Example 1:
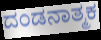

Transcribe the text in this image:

ದಂಡನಾತ್ಮಕ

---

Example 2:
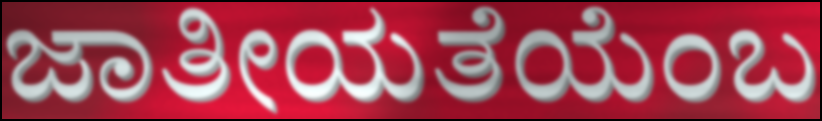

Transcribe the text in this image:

ಜಾತೀಯತೆಯೆಂಬ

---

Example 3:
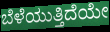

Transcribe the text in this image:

ಬೆಳೆಯುತ್ತಿದೆಯೇ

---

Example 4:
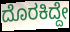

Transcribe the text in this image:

ದೊರಕಿದ್ದೇ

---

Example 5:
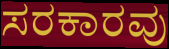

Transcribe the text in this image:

ಸರಕಾರವು